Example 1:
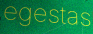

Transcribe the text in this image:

egestas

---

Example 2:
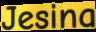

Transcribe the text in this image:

Jesina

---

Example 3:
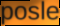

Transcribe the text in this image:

posle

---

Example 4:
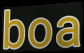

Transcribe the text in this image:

boa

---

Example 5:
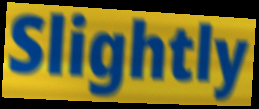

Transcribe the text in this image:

Slightly